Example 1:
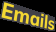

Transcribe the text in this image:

Emails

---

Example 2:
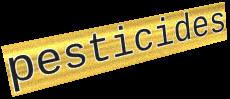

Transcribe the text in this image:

pesticides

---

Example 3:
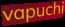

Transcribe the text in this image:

vapuchi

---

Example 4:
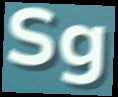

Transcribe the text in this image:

Sg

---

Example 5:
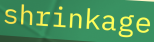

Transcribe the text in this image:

shrinkage